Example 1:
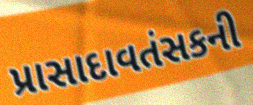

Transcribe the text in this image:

પ્રાસાદાવતંસકની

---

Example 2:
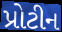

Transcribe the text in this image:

પ્રોટીન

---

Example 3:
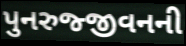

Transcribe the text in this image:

પુનરુજ્જીવનની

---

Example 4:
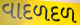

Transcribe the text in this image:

વાદળદળ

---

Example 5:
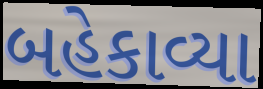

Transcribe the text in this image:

બહેકાવ્યા